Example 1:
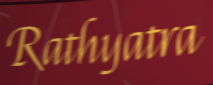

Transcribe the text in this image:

Rathyatra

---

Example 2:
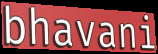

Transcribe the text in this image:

bhavani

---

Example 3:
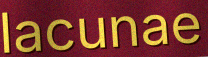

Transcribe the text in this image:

lacunae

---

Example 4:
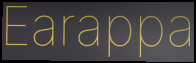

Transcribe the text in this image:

Earappa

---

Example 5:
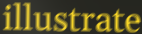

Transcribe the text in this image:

illustrate